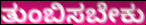
ತುಂಬಿಸಬೇಕು